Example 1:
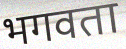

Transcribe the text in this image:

भगवता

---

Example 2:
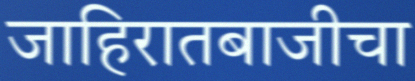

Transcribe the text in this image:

जाहिरातबाजीचा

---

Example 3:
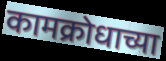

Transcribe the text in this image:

कामक्रोधाच्या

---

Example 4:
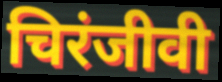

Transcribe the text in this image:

चिरंजीवी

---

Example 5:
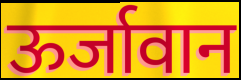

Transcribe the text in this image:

ऊर्जावान